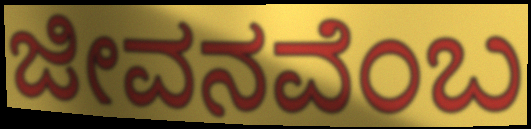
ಜೀವನವೆಂಬ